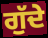
ਗੁੱਦੇ